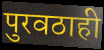
पुरवठाही